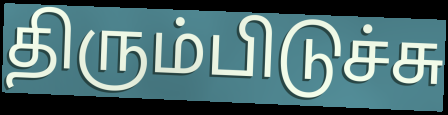
திரும்பிடுச்சு